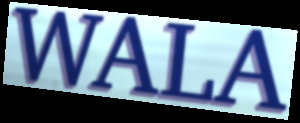
WALA